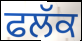
ਫਲੱਕ